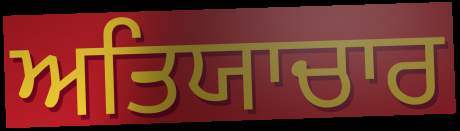
ਅਤਿਯਾਚਾਰ